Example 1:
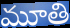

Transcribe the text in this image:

మూతి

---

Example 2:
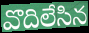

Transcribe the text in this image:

వొదిలేసిన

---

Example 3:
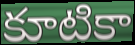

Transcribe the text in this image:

కూటికా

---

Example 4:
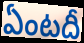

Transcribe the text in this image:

ఏంటదీ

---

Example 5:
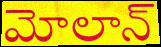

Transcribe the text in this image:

మోలాన్